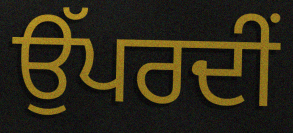
ਉੱਪਰਦੀਂ